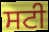
ਸਟੀ